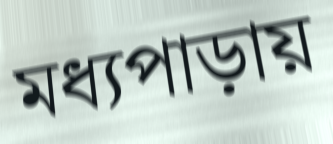
মধ্যপাড়ায়